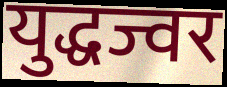
युद्धज्वर